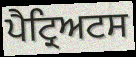
ਪੈਟ੍ਰਿਅਟਸ